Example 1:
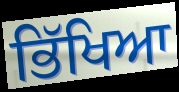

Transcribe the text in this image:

ਭਿੱਖਿਆ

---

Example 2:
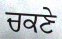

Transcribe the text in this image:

ਚਕਣੇ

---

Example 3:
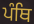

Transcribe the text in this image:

ਪੰਥਿ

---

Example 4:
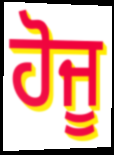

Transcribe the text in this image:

ਹੋਜੂ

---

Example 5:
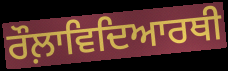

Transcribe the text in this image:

ਰੌਲ਼ਾਵਿਦਿਆਰਥੀ